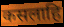
कसलाहि